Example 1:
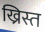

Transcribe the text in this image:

ख्रिस्त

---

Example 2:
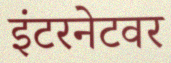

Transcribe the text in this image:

इंटरनेटवर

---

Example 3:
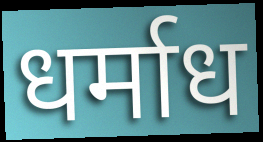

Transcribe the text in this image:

धर्माध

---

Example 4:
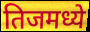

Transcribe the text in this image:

तिजमध्ये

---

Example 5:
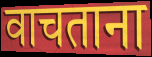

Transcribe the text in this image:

वाचताना